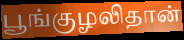
பூங்குழலிதான்